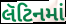
લૅટિનમાં